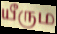
யீரும